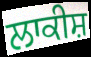
ਲਾਕੀਸ਼